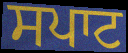
ਸਪਾਟ